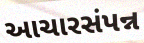
આચારસંપન્ન